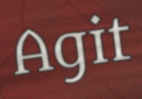
Agit